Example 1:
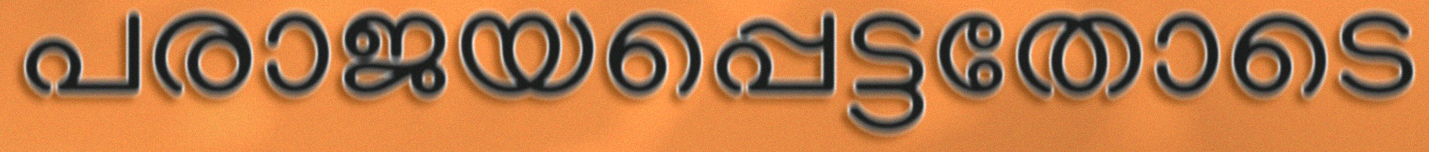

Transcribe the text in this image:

പരാജയപ്പെട്ടതോടെ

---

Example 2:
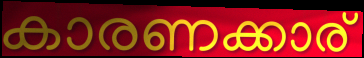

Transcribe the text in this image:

കാരണക്കാര്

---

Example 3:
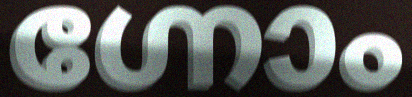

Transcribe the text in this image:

ഗ്നോം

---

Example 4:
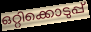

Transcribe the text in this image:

ഒറ്റിക്കൊടുപ്പ്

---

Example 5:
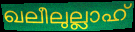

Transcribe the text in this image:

ഖലീലുല്ലാഹ്